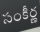
సంకీర్ణ